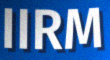
IIRM